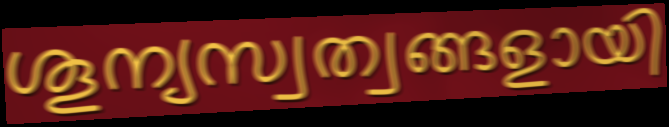
ശൂന്യസ്വത്വങ്ങളായി